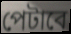
পেটাবে